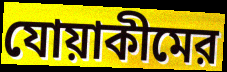
যোয়াকীমের